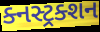
ક્નસ્ટ્રક્શન